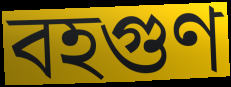
বহগুণ